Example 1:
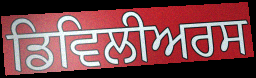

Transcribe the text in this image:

ਡਿਵਿਲੀਅਰਸ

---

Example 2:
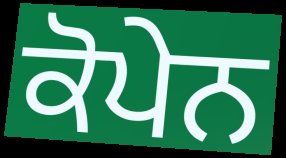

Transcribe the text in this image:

ਕੋਪੇਨ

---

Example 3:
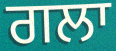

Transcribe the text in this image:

ਗਲਾ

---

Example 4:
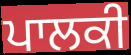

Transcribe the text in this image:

ਪਾਲਕੀ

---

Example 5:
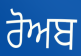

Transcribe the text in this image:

ਰੋਅਬ